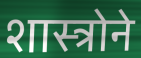
शास्त्रोने